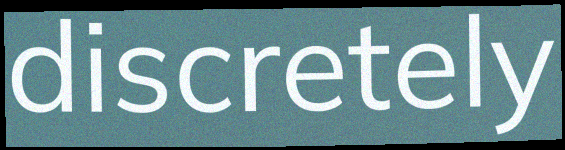
discretely